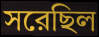
সরেছিল